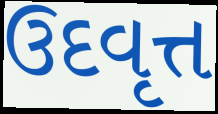
ઉદવૃત્ત